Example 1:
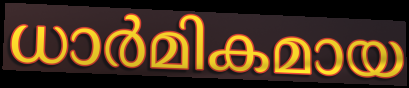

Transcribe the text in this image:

ധാർമികമായ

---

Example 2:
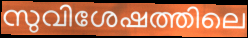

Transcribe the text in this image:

സുവിശേഷത്തിലെ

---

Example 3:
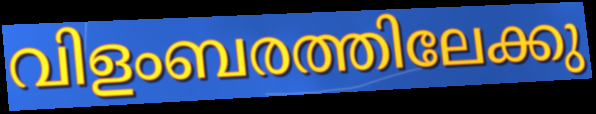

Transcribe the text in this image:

വിളംബരത്തിലേക്കു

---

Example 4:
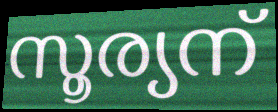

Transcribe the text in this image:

സൂര്യന്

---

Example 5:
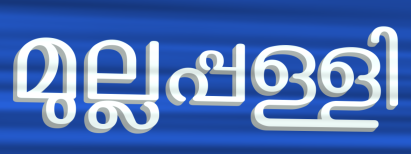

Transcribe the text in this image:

മുല്ലപ്പള്ളി